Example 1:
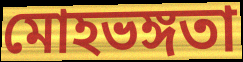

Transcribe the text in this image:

মোহভঙ্গতা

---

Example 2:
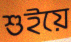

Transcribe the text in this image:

শুইয়ে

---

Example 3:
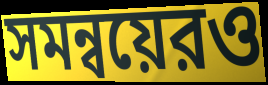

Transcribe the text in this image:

সমন্বয়েরও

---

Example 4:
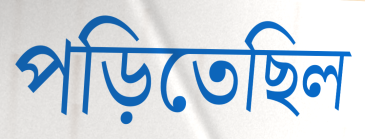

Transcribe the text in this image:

পড়িতেছিল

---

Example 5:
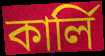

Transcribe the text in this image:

কার্লি